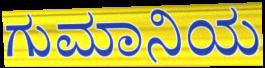
ಗುಮಾನಿಯ